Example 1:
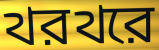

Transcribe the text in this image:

থরথরে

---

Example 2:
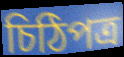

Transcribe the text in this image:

চিঠিপত্র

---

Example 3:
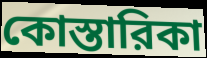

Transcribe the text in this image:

কোস্তারিকা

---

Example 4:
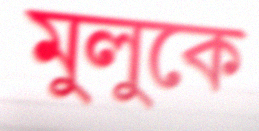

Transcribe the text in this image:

মুলুকে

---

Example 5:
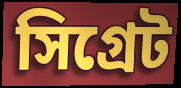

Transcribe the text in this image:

সিগ্রেট